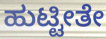
ಹುಟ್ಟೀತೇ